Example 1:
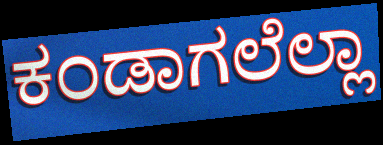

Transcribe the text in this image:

ಕಂಡಾಗಲೆಲ್ಲಾ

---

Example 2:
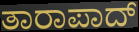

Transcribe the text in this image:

ತಾರಾಪಾದ್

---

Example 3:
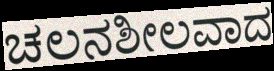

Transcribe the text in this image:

ಚಲನಶೀಲವಾದ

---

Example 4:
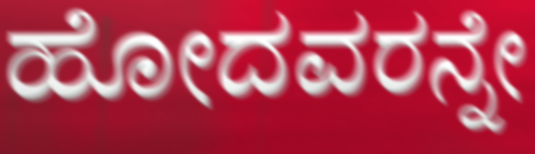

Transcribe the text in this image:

ಹೋದವರನ್ನೇ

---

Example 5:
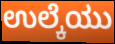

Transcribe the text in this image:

ಉಲ್ಕೆಯು